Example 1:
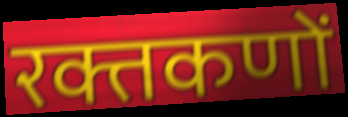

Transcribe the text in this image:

रक्तकणों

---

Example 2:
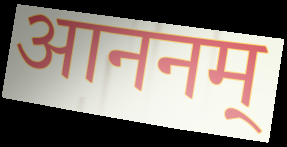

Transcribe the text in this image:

आननम्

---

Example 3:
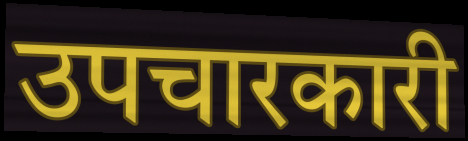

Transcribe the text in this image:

उपचारकारी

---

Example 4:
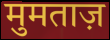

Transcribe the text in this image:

मुमताज़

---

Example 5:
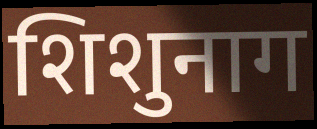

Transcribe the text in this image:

शिशुनाग